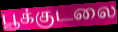
பூக்குடலை